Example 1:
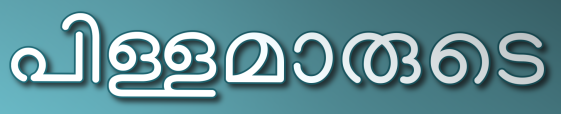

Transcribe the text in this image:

പിള്ളമാരുടെ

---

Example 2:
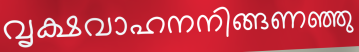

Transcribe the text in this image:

വൃക്ഷവാഹനനിങ്ങണഞ്ഞു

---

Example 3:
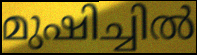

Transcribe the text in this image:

മുഷിച്ചിൽ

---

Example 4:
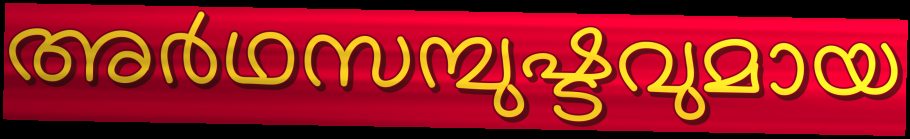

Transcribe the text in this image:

അർഥസമ്പുഷ്ടവുമായ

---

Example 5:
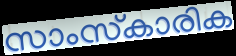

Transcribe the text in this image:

സാംസ്‌കാരിക